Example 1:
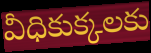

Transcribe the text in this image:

వీధికుక్కలకు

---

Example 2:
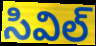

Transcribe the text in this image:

సివిల్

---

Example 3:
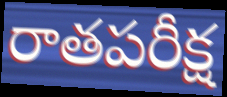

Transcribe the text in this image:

రాతపరీక్ష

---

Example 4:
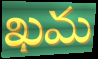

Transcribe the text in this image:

ఖమ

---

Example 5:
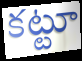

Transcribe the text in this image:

కట్టూ